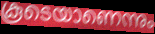
കൂടെയാണെന്നും